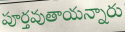
పూర్తవుతాయన్నారు